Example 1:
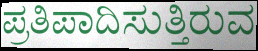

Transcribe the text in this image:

ಪ್ರತಿಪಾದಿಸುತ್ತಿರುವ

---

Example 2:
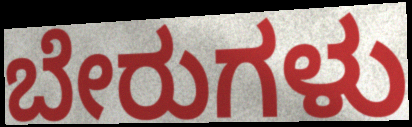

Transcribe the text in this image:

ಬೇರುಗಳು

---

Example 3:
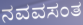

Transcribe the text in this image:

ನವವಸಂತ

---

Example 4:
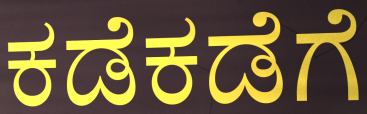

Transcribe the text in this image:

ಕಡೆಕಡೆಗೆ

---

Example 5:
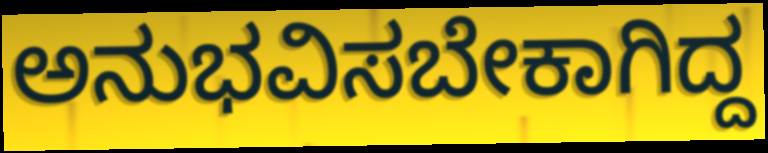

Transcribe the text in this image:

ಅನುಭವಿಸಬೇಕಾಗಿದ್ದ